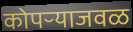
कोपऱ्याजवळ